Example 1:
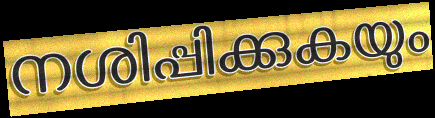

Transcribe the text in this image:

നശിപ്പിക്കുകയും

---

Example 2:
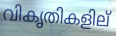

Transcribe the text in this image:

വികൃതികളില്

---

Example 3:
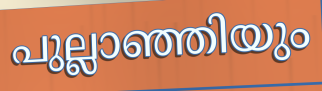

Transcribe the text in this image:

പുല്ലാഞ്ഞിയും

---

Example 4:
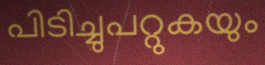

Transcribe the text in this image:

പിടിച്ചുപറ്റുകയും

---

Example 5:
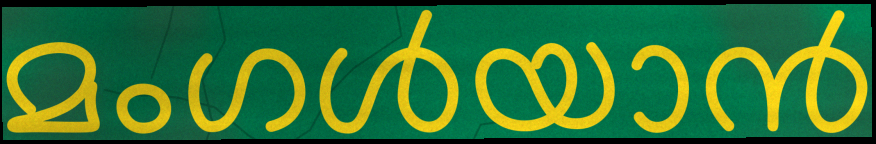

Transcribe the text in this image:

മംഗൾയാൻ